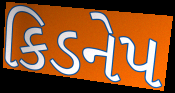
કિડનેપ